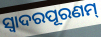
ସ୍ଵାଦରପୂରଣମ୍